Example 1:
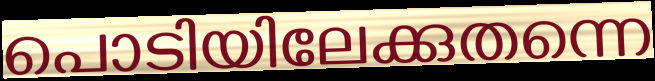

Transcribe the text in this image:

പൊടിയിലേക്കുതന്നെ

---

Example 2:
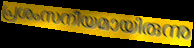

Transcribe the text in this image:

പ്രശംസനീയമായിരുന്നു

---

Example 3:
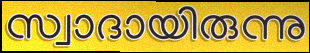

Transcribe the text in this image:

സ്വാദായിരുന്നു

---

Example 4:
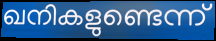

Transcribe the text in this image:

ഖനികളുണ്ടെന്ന്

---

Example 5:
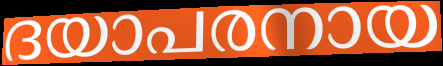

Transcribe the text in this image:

ദയാപരനായ